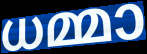
ധമ്മാ